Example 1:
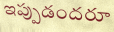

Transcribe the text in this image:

ఇప్పుడందరూ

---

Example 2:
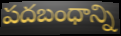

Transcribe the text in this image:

పదబంధాన్ని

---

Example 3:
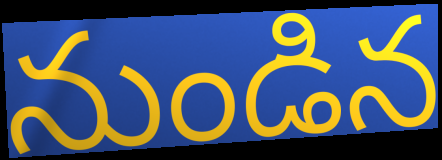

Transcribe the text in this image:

నుండిన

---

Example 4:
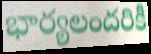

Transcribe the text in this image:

భార్యలందరికీ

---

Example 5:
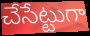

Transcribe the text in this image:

చేసేట్టుగా